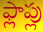
ఫ్లాప్లు